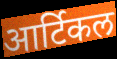
आर्टिकल